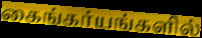
கைங்கர்யங்களில்